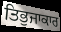
ਤਿਭੁਜਾਕਾਰ